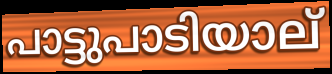
പാട്ടുപാടിയാല്